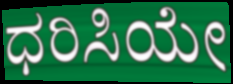
ಧರಿಸಿಯೇ